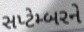
સપ્ટેમ્બરને